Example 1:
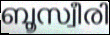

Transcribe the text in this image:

ബൂസ്വീരി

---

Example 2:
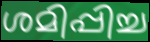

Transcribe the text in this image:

ശമിപ്പിച്ച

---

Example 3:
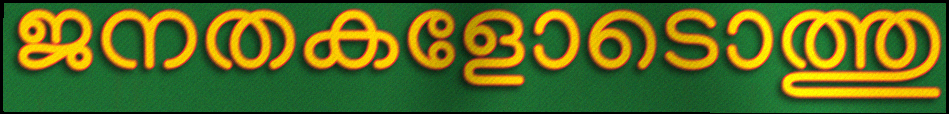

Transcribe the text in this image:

ജനതകളോടൊത്തു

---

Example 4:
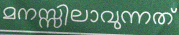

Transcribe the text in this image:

മനസ്സിലാവുന്നത്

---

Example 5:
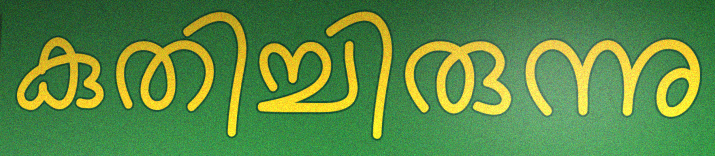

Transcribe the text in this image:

കുതിച്ചിരുന്നു